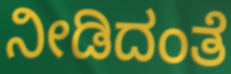
ನೀಡಿದಂತೆ